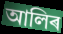
আলিৰ